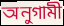
অনুগামী